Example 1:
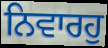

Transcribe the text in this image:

ਨਿਵਾਰਹੁ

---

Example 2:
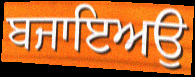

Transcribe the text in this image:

ਬਜਾਇਅਉ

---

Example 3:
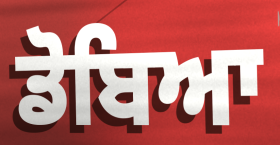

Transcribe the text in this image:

ਡੋਬਿਆ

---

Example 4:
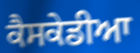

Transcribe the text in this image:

ਕੈਸਕੇਡੀਆ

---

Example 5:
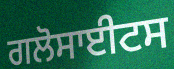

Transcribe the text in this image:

ਗਲੋਸਾਈਟਸ